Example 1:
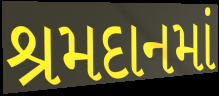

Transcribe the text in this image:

શ્રમદાનમાં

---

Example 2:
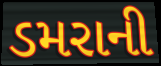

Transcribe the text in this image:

ડમરાની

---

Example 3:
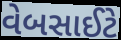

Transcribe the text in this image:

વેબસાઈટે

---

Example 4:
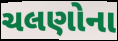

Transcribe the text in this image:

ચલણોના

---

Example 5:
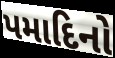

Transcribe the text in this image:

પમાદિનો